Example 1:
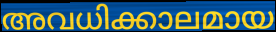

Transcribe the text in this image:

അവധിക്കാലമായ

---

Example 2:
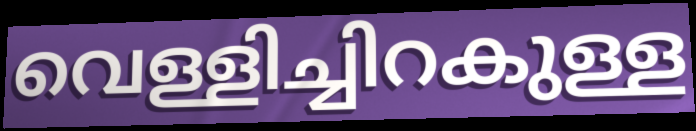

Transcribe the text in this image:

വെള്ളിച്ചിറകുള്ള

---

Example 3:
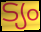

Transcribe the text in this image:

ട്യം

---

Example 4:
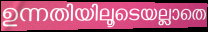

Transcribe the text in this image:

ഉന്നതിയിലൂടെയല്ലാതെ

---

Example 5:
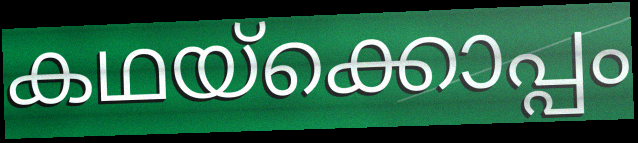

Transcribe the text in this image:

കഥയ്ക്കൊപ്പം